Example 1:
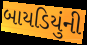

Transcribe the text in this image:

બાયડિયુંની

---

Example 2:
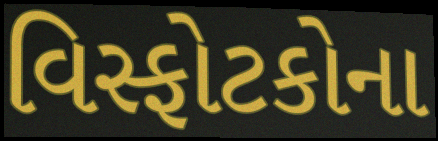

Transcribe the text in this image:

વિસ્ફોટકોના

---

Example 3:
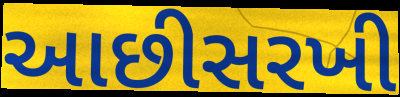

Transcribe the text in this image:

આછીસરખી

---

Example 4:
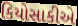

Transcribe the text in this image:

કિયોસાકીએ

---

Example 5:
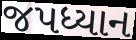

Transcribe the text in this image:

જપધ્યાન